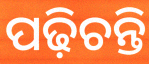
ପଢ଼ିଚନ୍ତି